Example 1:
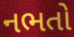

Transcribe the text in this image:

નભતો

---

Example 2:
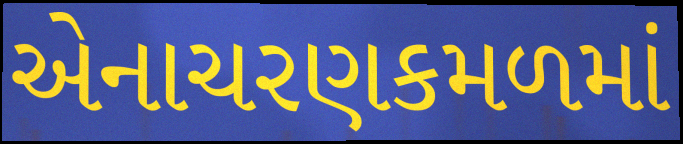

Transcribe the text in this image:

એનાચરણકમળમાં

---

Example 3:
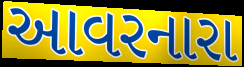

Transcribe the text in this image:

આવરનારા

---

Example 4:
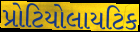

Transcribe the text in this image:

પ્રોટિયોલાયટિક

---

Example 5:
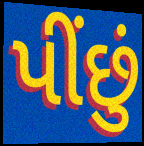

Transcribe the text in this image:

પીંછું